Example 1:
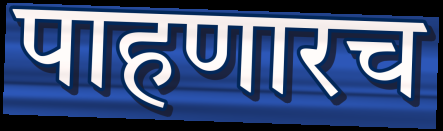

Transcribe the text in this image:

पाहणारच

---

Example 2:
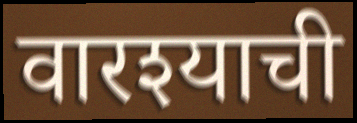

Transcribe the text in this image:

वारश्याची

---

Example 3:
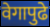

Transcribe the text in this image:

वेगापुढे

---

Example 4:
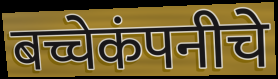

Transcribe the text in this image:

बच्चेकंपनीचे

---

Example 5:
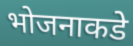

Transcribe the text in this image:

भोजनाकडे